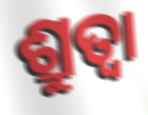
ଶ୍ରୁତ୍ଵା